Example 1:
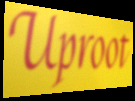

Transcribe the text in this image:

Uproot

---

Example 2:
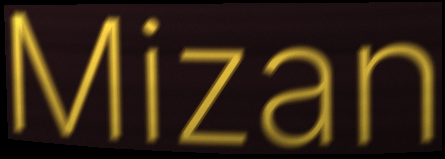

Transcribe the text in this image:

Mizan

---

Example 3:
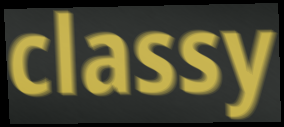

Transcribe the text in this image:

classy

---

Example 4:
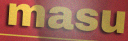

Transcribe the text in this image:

masu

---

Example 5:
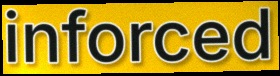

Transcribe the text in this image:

inforced